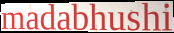
madabhushi